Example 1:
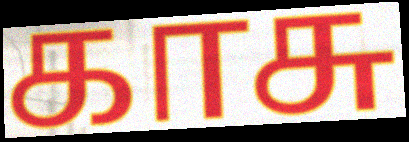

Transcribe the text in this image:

காசு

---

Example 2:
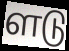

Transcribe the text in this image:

ளடு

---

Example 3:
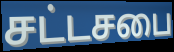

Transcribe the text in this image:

சட்டசபை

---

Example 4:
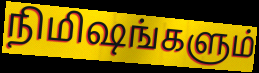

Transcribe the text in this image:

நிமிஷங்களும்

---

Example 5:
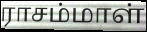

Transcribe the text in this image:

ராசம்மாள்